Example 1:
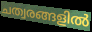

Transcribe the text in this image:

ചത്വരങ്ങളിൽ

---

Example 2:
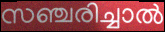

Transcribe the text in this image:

സഞ്ചരിച്ചാൽ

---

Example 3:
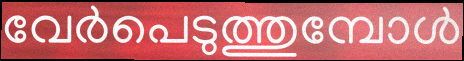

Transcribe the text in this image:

വേർപെടുത്തുമ്പോൾ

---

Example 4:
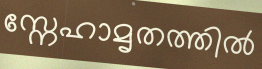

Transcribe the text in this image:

സ്നേഹാമൃതത്തിൽ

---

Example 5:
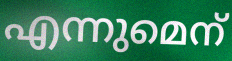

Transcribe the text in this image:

എന്നുമെന്